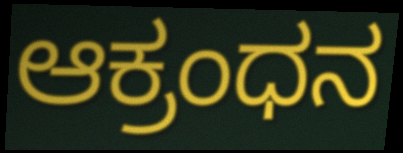
ಆಕ್ರಂಧನ